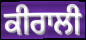
ਕੀਰਾਲੀ